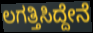
ಲಗತ್ತಿಸಿದ್ದೇನೆ